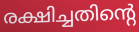
രക്ഷിച്ചതിന്റെ